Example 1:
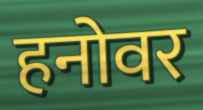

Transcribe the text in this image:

हनोवर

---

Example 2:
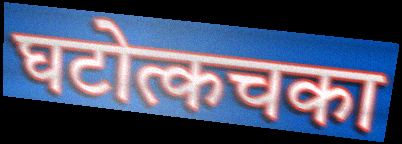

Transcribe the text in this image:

घटोत्कचका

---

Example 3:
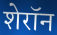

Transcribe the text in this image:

शेरॉन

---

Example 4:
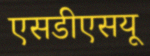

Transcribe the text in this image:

एसडीएसयू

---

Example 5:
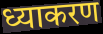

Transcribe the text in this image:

ध्याकरण